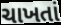
ચાખતાં